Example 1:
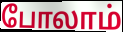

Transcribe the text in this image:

போலாம்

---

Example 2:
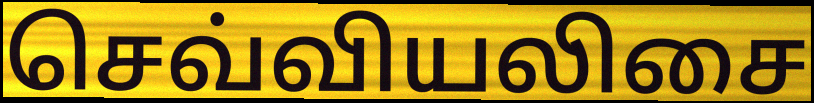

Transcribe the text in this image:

செவ்வியலிசை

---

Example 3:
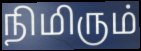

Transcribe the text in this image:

நிமிரும்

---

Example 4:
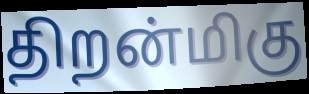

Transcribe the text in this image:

திறன்மிகு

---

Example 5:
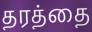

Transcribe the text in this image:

தரத்தை